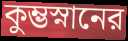
কুম্ভস্নানের